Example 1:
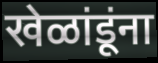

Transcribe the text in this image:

खेळांडूंना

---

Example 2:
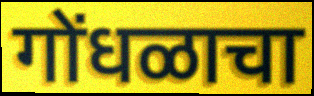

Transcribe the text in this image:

गोंधळाचा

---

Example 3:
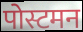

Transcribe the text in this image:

पोस्टमन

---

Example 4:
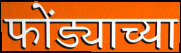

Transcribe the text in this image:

फोंड्याच्या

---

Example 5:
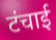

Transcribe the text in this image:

टंचाई